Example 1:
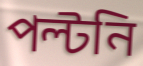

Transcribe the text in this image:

পল্টনি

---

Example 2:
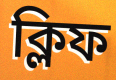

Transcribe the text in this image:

ক্লিফ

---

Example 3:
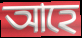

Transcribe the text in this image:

আহে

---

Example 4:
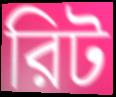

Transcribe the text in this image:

রিট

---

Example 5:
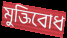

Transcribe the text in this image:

মুক্তিবোধ